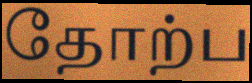
தோற்ப